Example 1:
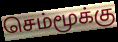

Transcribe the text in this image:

செம்மூக்கு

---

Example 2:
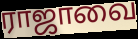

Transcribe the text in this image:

ராஜாவை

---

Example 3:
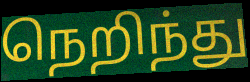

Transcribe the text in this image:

நெறிந்து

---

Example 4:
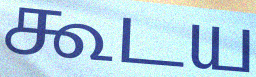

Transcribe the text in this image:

கூடய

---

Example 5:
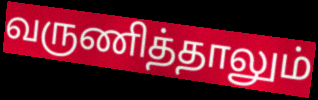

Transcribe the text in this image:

வருணித்தாலும்